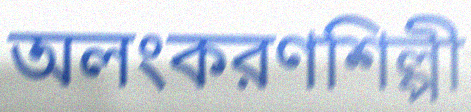
অলংকরণশিল্পী